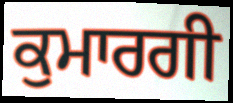
ਕੁਮਾਰਗੀ